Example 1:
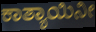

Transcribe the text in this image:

ಕಾತ್ಯಾಯಿನೀ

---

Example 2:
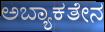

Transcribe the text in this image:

ಅಬ್ಯಾಕತೇನ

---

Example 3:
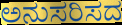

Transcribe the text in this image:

ಅನುಸರಿಸದ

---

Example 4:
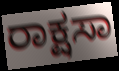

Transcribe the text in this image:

ರಾಕ್ಷಸಾ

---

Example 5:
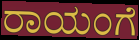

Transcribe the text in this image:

ರಾಯಂಗೆ